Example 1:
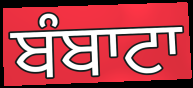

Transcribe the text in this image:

ਬੰਬਾਟਾ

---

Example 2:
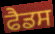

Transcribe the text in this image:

ਫੈਡਸ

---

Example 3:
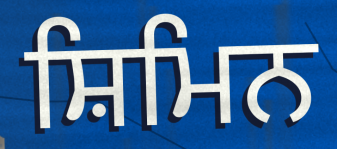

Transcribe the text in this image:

ਸ਼ਿਮਿਨ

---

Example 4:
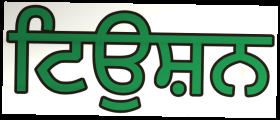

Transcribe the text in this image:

ਟਿਉਸ਼ਨ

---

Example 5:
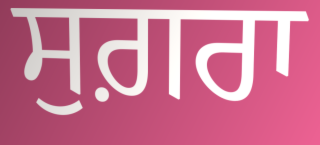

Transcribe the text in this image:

ਸੁਗ਼ਰਾ